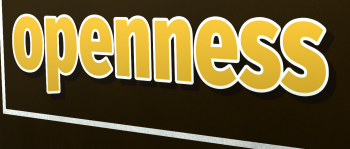
openness